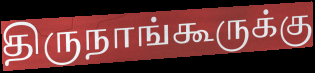
திருநாங்கூருக்கு